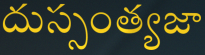
దుస్సంత్యజా